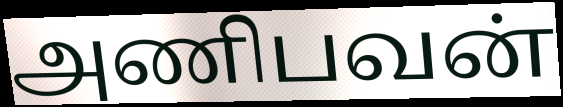
அணிபவன்